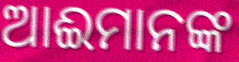
ଆଈମାନଙ୍କ